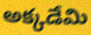
అక్కడేమి